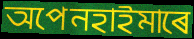
অপেনহাইমাৰে